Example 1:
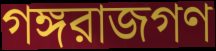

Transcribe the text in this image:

গঙ্গরাজগণ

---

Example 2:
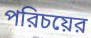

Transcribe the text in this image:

পরিচয়ের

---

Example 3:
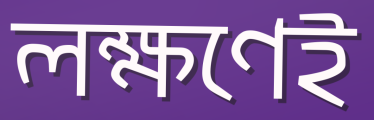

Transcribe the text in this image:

লক্ষণেই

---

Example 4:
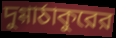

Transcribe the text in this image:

দুগ্গাঠাকুরের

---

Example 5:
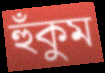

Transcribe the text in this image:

হুঁকুম